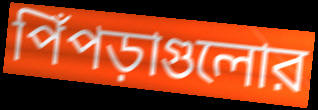
পিঁপড়াগুলোর